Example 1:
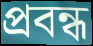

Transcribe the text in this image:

প্রবন্ধ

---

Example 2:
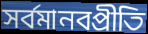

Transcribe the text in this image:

সর্বমানবপ্রীতি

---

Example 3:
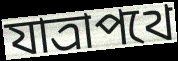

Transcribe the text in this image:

যাত্রাপথে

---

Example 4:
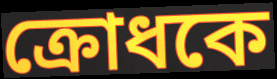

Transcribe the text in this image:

ক্রোধকে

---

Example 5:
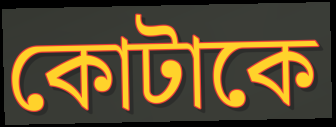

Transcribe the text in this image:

কোটাকে